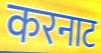
करनाट